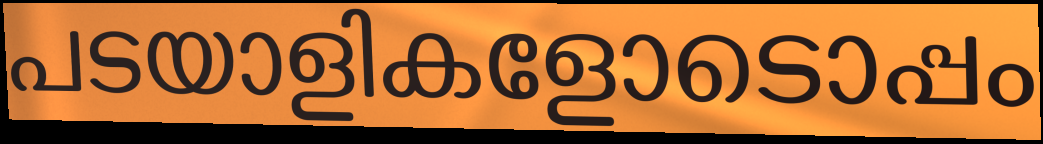
പടയാളികളോടൊപ്പം